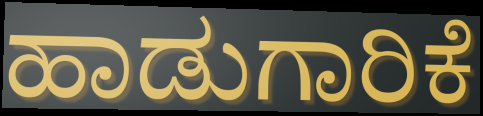
ಹಾಡುಗಾರಿಕೆ